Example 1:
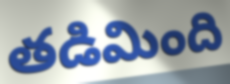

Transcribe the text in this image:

తడిమింది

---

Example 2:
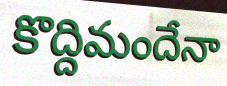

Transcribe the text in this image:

కొద్దిమందేనా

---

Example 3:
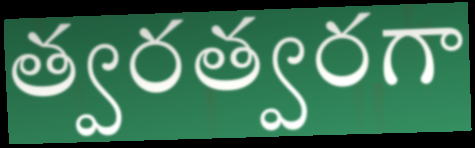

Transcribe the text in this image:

త్వరత్వరగా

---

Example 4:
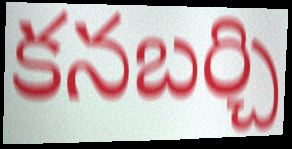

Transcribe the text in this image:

కనబర్చి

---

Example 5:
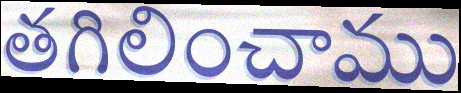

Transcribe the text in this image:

తగిలించాము